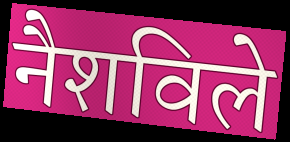
नैशविले